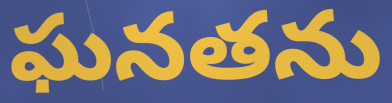
ఘనతను